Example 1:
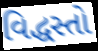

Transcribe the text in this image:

વિદ્ધસ્તો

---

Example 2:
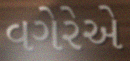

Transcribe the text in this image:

વગેરેએ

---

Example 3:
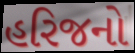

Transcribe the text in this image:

હરિજનો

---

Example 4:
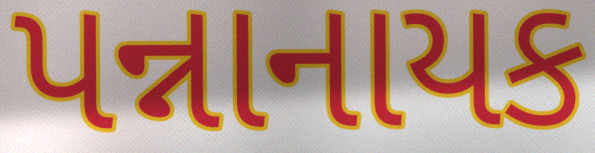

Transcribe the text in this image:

પન્નાનાયક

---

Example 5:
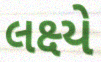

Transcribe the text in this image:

લક્ષ્યે